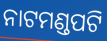
ନାଟମଣ୍ଡପଟି